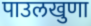
पाउलखुणा